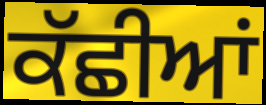
ਕੱਛੀਆਂ